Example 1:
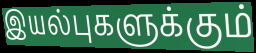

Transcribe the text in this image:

இயல்புகளுக்கும்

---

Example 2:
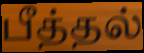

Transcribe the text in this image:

பீத்தல்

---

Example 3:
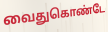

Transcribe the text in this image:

வைதுகொண்டே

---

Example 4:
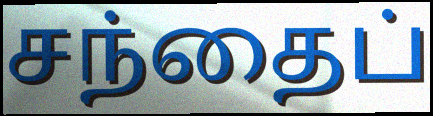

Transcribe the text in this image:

சந்தைப்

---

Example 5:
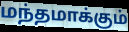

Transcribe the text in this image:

மந்தமாக்கும்